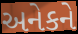
અનેકને